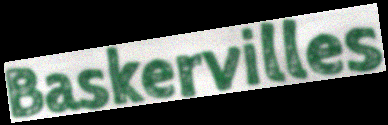
Baskervilles